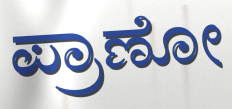
ಪ್ರಾಣೋ